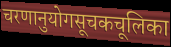
चरणानुयोगसूचकचूलिका